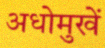
अधोमुखें